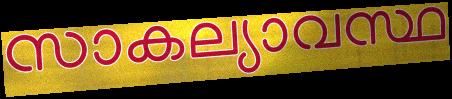
സാകല്യാവസ്ഥ